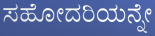
ಸಹೋದರಿಯನ್ನೇ